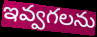
ఇవ్వగలను